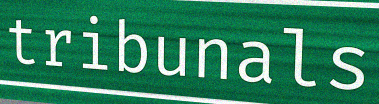
tribunals